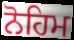
ਨੋਹਿਮ